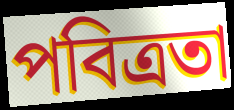
পবিত্রতা